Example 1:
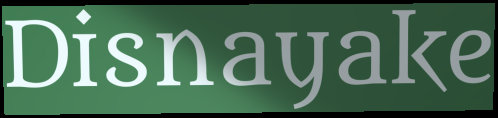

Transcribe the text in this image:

Disnayake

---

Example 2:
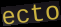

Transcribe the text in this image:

ecto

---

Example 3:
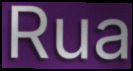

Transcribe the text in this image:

Rua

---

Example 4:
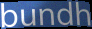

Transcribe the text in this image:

bundh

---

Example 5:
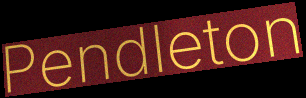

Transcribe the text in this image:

Pendleton